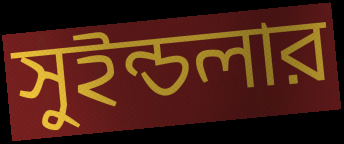
সুইন্ডলার